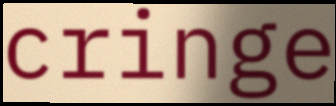
cringe